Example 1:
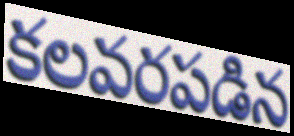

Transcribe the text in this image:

కలవరపడిన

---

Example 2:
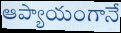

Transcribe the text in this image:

ఆప్యాయంగానే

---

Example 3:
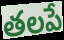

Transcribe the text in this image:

తలపే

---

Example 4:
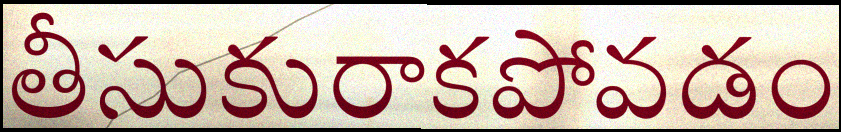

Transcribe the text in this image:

తీసుకురాకపోవడం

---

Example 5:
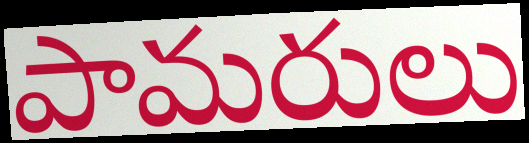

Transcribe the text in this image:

పామరులు